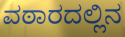
ವಠಾರದಲ್ಲಿನ